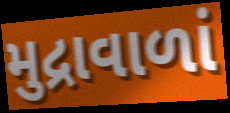
મુદ્રાવાળાં